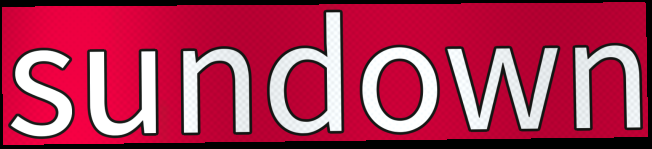
sundown